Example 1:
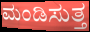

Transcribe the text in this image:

ಮಂಡಿಸುತ್ತ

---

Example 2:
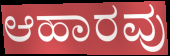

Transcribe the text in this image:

ಆಹಾರವು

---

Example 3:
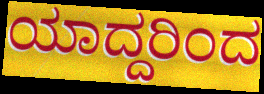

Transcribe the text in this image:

ಯಾದ್ದರಿಂದ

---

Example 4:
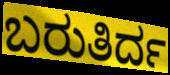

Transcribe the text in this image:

ಬರುತಿರ್ದ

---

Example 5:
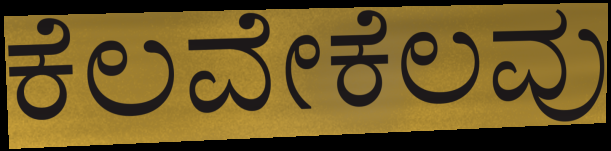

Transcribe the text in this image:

ಕೆಲವೇಕೆಲವು